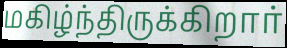
மகிழ்ந்திருக்கிறார்